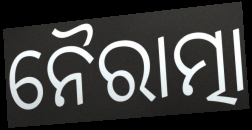
ନୈରାତ୍ମା